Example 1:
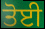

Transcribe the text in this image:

ਤੋਈ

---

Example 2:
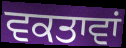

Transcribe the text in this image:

ਵਕਤਾਵਾਂ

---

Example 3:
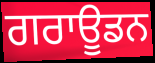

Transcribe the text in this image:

ਗਰਾਊਡਨ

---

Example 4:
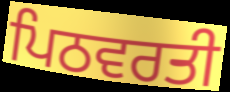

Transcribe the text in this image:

ਪਿਠਵਰਤੀ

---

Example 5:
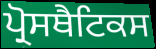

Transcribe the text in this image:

ਪ੍ਰੋਸਥੈਟਿਕਸ